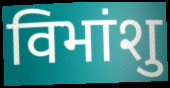
विभांशु